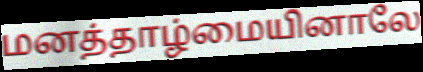
மனத்தாழ்மையினாலே